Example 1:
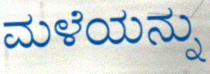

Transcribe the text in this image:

ಮಳೆಯನ್ನು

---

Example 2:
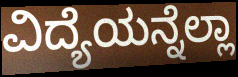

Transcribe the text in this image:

ವಿದ್ಯೆಯನ್ನೆಲ್ಲಾ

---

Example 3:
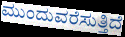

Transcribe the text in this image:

ಮುಂದುವರೆಸುತ್ತಿದೆ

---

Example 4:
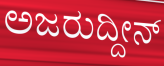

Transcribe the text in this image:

ಅಜರುದ್ದೀನ್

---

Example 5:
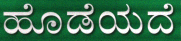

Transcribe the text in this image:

ಹೊಡೆಯದೆ